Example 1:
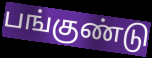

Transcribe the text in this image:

பங்குண்டு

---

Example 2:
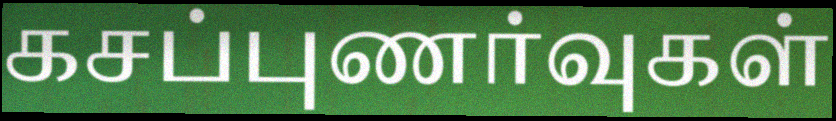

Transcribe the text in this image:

கசப்புணர்வுகள்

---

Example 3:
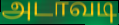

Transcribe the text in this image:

அடாவடி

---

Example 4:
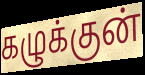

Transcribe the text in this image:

கழுக்குன்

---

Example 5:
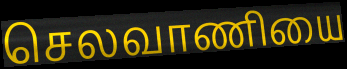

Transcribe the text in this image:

செலவாணியை